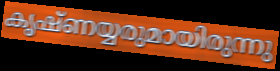
കൃഷ്ണയ്യരുമായിരുന്നു